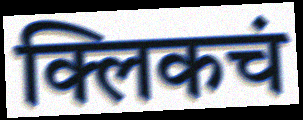
क्लिकचं